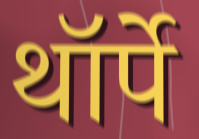
थॉर्पे